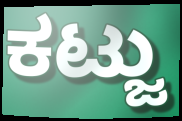
ಕಟ್ಜು